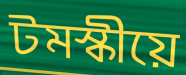
টমস্কীয়ে